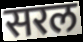
सरल